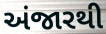
અંજારથી